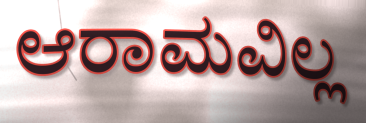
ಆರಾಮವಿಲ್ಲ